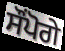
ਸੌਂਪੋਗੇ